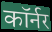
कॉर्नर